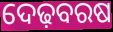
ଦେଢ଼ବରଷ